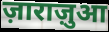
ज़ाराज़ुआ